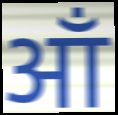
आँ